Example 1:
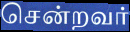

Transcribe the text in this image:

சென்றவர்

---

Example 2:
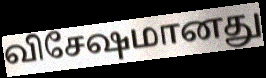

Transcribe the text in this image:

விசேஷமானது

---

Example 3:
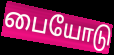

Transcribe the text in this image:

பையோடு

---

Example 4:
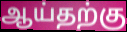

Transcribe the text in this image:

ஆய்தற்கு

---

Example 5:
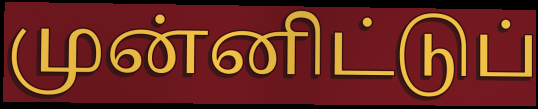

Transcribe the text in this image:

முன்னிட்டுப்